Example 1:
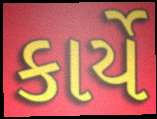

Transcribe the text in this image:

કાર્યે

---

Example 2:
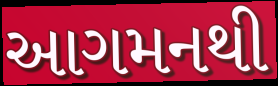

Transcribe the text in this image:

આગમનથી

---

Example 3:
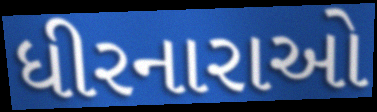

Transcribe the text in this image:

ધીરનારાઓ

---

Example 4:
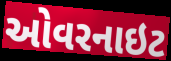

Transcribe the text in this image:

ઓવરનાઇટ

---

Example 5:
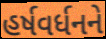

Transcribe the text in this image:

હર્ષવર્ધનને